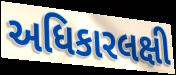
અધિકારલક્ષી